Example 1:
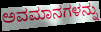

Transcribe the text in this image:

ಅವಮಾನಗಳನ್ನು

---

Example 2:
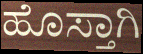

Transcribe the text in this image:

ಹೊಸ್ತಾಗಿ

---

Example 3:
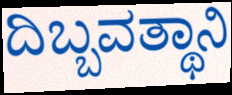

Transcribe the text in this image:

ದಿಬ್ಬವತ್ಥಾನಿ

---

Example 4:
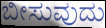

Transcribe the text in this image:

ಬೀಸುವುದು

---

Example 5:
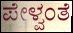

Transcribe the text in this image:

ಪೇಳ್ವಂತೆ